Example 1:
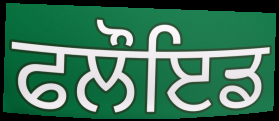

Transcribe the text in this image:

ਫਲੌਇਡ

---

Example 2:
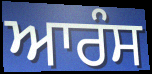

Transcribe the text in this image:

ਆਰੰਸ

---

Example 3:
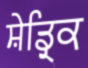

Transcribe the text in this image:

ਸ਼ੇਡ੍ਰਿਕ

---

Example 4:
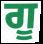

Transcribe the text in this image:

ਗੂ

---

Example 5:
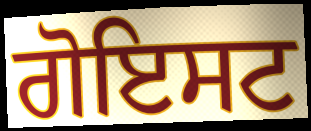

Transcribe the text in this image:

ਗੋਇਸਟ